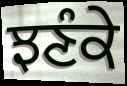
ਝਣੰਕੇ